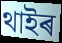
থাইৰ